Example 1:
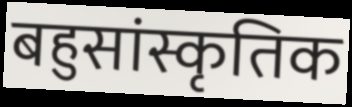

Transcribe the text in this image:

बहुसांस्कृतिक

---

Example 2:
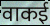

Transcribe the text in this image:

वाकई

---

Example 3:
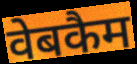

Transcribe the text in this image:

वेबकैम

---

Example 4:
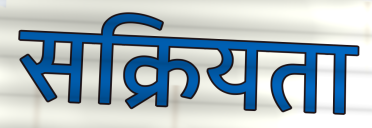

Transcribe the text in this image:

सक्रियता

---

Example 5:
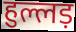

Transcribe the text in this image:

हुल्लड़